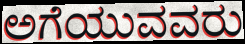
ಅಗೆಯುವವರು